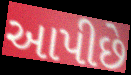
આપીછે